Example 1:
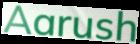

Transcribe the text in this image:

Aarush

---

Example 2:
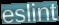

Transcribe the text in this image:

eslint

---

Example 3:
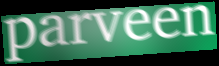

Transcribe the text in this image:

parveen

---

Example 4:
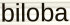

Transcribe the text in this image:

biloba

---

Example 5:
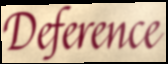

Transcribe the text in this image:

Deference